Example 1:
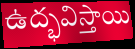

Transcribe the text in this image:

ఉద్భవిస్తాయి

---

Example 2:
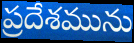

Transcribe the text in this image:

ప్రదేశమును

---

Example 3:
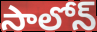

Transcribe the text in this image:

సాలోన్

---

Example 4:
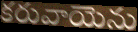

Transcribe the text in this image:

కరువాయెను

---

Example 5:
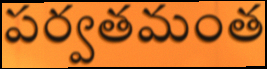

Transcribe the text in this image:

పర్వతమంత